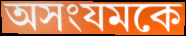
অসংযমকে